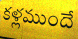
కళ్లముందే